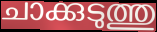
ചാക്കുടുത്തു